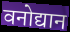
वनोद्यान